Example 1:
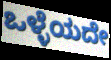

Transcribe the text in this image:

ಒಳ್ಳೆಯದೇ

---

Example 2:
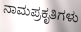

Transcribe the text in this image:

ನಾಮಪ್ರಕೃತಿಗಳು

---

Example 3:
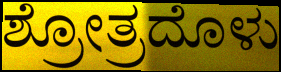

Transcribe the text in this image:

ಶ್ರೋತ್ರದೊಳು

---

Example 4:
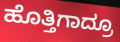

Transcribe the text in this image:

ಹೊತ್ತಿಗಾದ್ರೂ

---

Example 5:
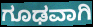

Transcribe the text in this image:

ಗೂಢವಾಗಿ